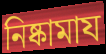
নিষ্কামায